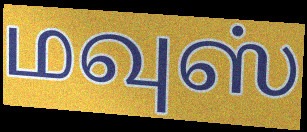
மவுஸ்